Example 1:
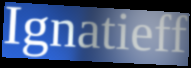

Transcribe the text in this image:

Ignatieff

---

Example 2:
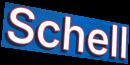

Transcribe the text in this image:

Schell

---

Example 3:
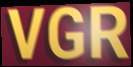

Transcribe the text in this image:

VGR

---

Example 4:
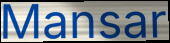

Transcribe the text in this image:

Mansar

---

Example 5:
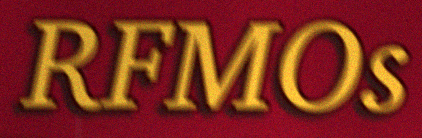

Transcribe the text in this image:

RFMOs